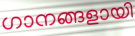
ഗാനങ്ങളായി